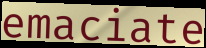
emaciate